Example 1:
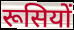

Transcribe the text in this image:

रूसियों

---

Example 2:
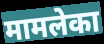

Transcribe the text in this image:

मामलेका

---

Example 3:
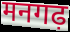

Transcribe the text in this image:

मनगढ़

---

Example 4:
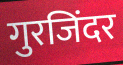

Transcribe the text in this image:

गुरजिंदर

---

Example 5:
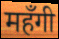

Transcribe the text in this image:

महँगी